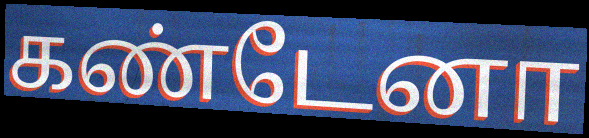
கண்டேனா